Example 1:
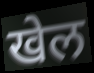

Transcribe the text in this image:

खेल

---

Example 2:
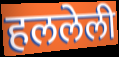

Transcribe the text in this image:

हललेली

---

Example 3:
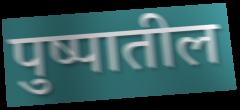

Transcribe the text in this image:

पुष्पातील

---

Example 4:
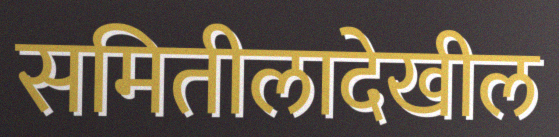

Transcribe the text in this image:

समितीलादेखील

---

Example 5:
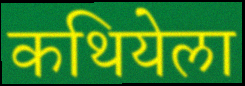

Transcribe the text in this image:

कथियेला